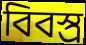
বিবস্ত্র